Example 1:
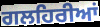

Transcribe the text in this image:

ਗਲਹਿਰੀਆਂ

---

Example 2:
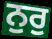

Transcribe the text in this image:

ਨੁਰੁ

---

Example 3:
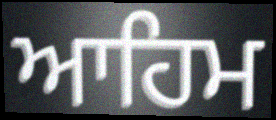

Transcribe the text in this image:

ਆਹਿਮ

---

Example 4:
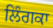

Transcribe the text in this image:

ਲਿੰਗਕਾ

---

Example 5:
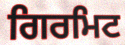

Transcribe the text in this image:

ਗਿਰਮਿਟ